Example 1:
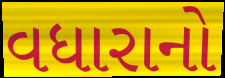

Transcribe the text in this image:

વધારાનો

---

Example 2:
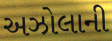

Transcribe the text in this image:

અઝોલાની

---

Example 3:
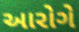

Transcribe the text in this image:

આરોગે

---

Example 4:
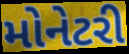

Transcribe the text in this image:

મોનેટરી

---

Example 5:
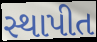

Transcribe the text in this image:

સ્થાપીત